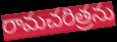
రామచరిత్రను